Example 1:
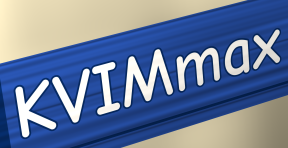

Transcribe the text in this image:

KVIMmax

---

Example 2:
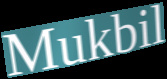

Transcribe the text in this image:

Mukbil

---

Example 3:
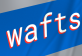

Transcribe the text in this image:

wafts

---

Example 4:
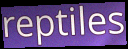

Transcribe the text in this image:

reptiles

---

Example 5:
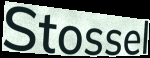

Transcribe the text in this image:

Stossel